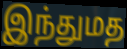
இந்துமத